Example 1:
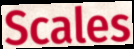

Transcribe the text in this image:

Scales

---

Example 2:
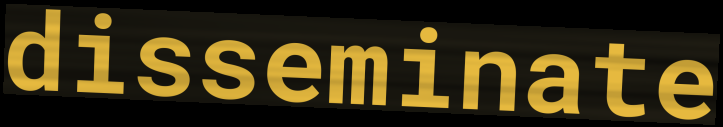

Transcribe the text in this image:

disseminate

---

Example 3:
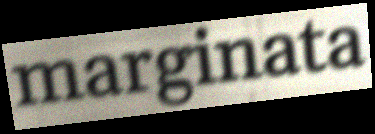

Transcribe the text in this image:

marginata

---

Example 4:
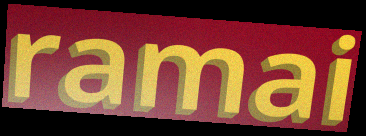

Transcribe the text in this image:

ramai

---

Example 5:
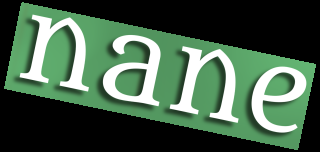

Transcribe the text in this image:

nane